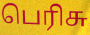
பெரிசு